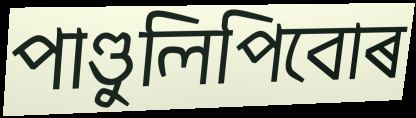
পাণ্ডুলিপিবোৰ